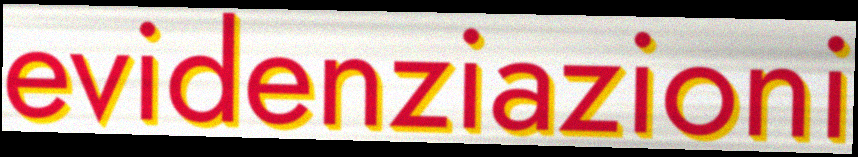
evidenziazioni